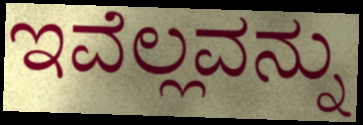
ಇವೆಲ್ಲವನ್ನು